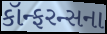
કૉન્ફરન્સના